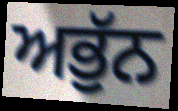
ਅਭੁੱਨ